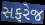
સફરેજ